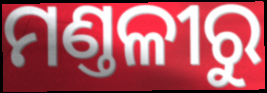
ମଣ୍ତଳୀରୁ